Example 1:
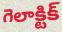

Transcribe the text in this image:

గెలాక్టిక్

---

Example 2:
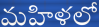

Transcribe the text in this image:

మహిళలో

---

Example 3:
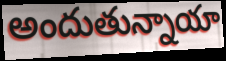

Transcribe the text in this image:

అందుతున్నాయా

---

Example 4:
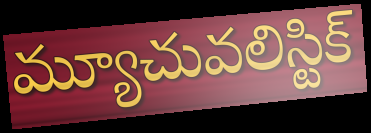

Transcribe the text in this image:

మ్యూచువలిస్టిక్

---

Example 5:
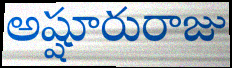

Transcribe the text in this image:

అష్షూరురాజు